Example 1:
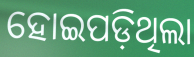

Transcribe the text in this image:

ହୋଇପଡ଼ିଥିଲା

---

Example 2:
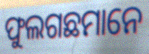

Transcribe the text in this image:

ଫୁଲଗଛମାନେ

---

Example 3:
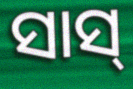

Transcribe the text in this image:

ସାସ୍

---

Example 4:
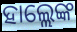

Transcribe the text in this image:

ହାଲ୍ଲେଙ୍କ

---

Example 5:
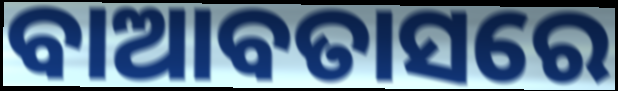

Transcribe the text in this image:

ବାଆବତାସରେ